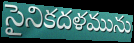
సైనికదళమును